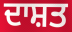
ਦਾਸ਼ਤ